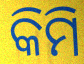
କିମି